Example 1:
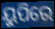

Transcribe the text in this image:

ୟୁପିରେ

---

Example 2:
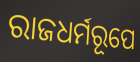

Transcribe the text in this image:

ରାଜଧର୍ମରୂପେ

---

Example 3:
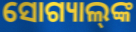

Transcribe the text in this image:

ସୋଗ୍ୟାଲ୍‌ଙ୍କ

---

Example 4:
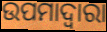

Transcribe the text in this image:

ଉପମାଦ୍ୱାରା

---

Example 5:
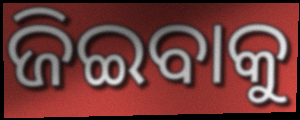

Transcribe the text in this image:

ଜିଇବାକୁ